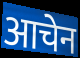
आचेन